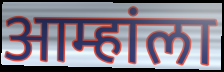
आम्हांला